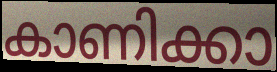
കാണിക്കാ